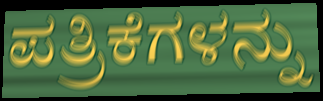
ಪತ್ರಿಕೆಗಳನ್ನು